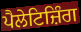
ਪੈਲੇਟਿਜ਼ਿੰਗ